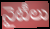
నైటీలు